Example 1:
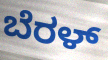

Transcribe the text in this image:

ಬೆರಳ್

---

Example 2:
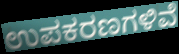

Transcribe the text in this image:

ಉಪಕರಣಗಳಿವೆ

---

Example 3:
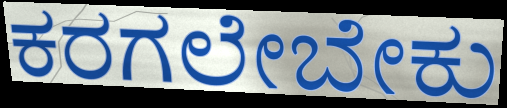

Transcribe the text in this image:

ಕರಗಲೇಬೇಕು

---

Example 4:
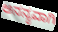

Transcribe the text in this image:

ಅನನ್ಯವಾಗಿ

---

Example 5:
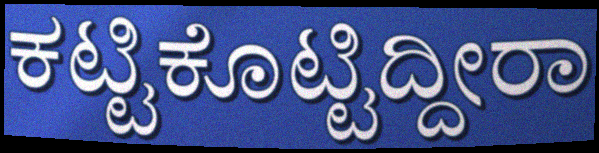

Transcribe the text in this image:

ಕಟ್ಟಿಕೊಟ್ಟಿದ್ದೀರಾ